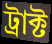
ট্রাক্ট